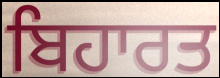
ਬਿਹਾਰਤ